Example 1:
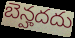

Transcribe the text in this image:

బెన్హదదు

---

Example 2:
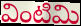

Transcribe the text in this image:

వింటిమి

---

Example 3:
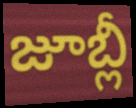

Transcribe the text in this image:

జూబ్లీ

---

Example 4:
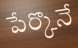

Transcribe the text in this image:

పేర్కొనే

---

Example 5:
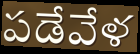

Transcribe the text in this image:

పడేవేళ